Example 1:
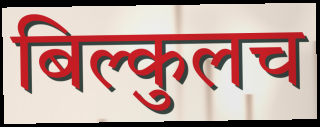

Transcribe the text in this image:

बिल्कुलच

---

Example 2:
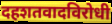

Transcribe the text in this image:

दहशतवादविरोधी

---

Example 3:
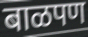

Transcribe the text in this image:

बाळपण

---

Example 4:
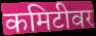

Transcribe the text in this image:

कमिटीवर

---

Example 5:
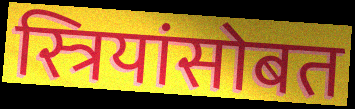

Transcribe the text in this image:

स्त्रियांसोबत